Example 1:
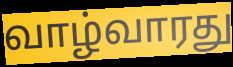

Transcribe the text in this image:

வாழ்வாரது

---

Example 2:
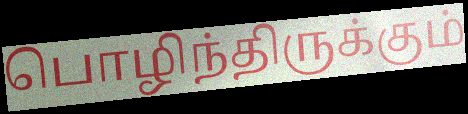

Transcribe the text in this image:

பொழிந்திருக்கும்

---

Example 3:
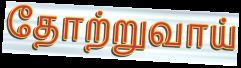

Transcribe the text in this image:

தோற்றுவாய்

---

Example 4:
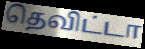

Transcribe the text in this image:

தெவிட்டா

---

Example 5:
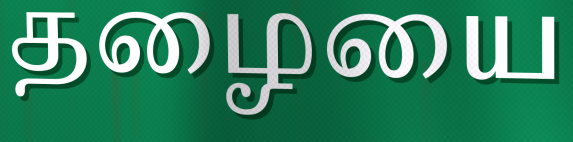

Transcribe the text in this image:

தழையை